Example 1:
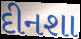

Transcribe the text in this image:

દીનશા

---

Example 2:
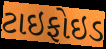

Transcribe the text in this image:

ટાઇફોઇડ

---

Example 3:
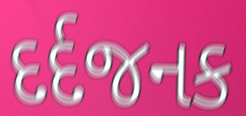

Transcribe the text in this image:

દર્દજનક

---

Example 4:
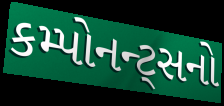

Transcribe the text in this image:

કમ્પોનન્ટ્સનો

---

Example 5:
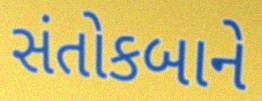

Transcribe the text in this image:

સંતોકબાને